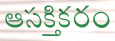
ఆసక్తికరం